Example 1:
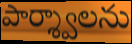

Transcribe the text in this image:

పార్శ్వాలను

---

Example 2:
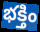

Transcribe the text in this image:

భక్తిం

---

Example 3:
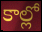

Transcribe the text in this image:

కాల్లో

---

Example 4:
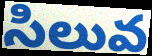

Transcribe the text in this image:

సిలువ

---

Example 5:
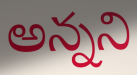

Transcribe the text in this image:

అన్నని